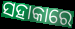
ସହାକାରେ